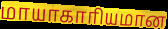
மாயாகாரியமான